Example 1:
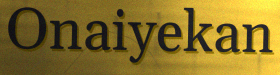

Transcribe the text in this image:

Onaiyekan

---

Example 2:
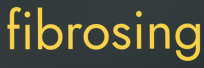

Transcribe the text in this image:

fibrosing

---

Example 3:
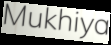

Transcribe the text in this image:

Mukhiya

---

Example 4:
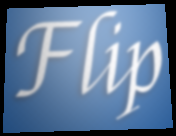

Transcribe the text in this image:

Flip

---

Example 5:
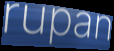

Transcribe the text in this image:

rupan